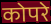
कोपरे